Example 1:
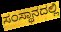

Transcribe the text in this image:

ಸಂಸ್ಥಾನದಲ್ಲಿ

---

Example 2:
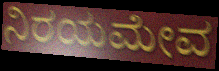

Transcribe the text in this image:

ನಿರಯಮೇವ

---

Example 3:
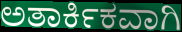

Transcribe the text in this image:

ಅತಾರ್ಕಿಕವಾಗಿ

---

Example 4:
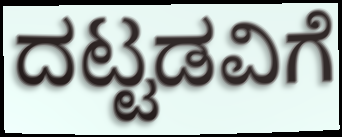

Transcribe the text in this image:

ದಟ್ಟಡವಿಗೆ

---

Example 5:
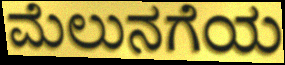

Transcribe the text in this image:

ಮೆಲುನಗೆಯ